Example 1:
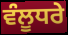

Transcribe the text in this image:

ਵੰਲੂਧਰੇ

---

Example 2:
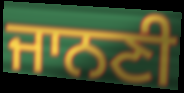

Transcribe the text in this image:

ਜਾਨਣੀ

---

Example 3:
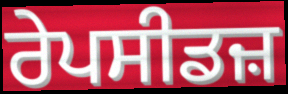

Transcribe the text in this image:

ਰੇਪਸੀਡਜ਼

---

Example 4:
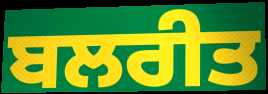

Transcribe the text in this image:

ਬਲਰੀਤ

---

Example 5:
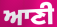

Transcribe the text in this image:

ਆਣੀ